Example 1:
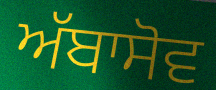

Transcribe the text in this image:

ਅੱਬਾਸੋਵ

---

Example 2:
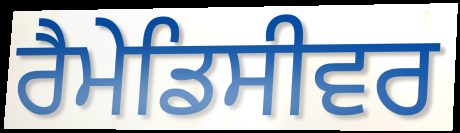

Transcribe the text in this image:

ਰੈਮੇਡਿਸੀਵਰ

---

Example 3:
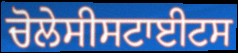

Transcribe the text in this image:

ਚੋਲੇਸੀਸਟਾਈਟਸ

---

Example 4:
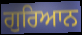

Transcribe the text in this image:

ਗੁਰਿਆਨ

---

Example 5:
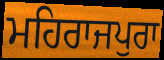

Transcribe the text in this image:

ਮਹਿਰਾਜਪੁਰਾ